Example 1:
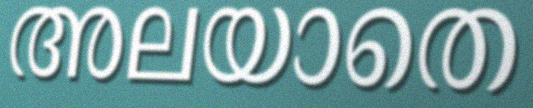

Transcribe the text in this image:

അലയാതെ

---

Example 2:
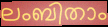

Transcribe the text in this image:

ലംബിതാം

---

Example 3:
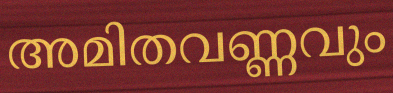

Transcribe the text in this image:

അമിതവണ്ണവും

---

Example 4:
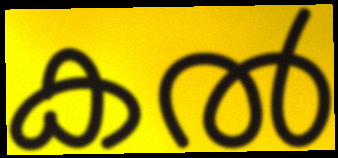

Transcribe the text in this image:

കൽ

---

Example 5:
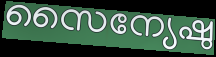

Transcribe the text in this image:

സൈന്യേഷു